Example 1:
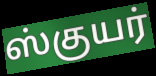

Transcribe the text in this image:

ஸ்குயர்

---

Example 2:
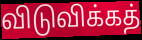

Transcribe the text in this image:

விடுவிக்கத்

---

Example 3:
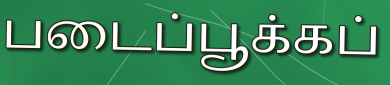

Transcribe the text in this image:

படைப்பூக்கப்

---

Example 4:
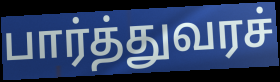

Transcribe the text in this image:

பார்த்துவரச்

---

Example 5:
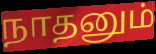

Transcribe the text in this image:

நாதனும்